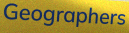
Geographers